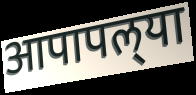
आपापल्या